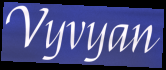
Vyvyan